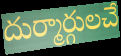
దుర్మార్గులచే